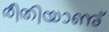
രീതിയാണു്